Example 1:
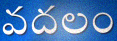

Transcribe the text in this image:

వదలం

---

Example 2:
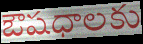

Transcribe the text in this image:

ఔషధాలకు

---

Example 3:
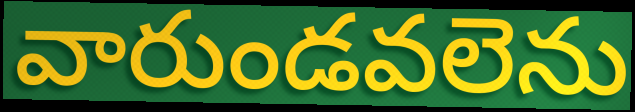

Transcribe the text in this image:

వారుండవలెను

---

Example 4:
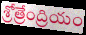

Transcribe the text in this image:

శ్రోత్రేంద్రియం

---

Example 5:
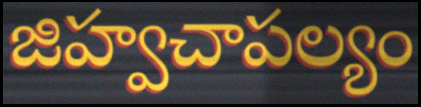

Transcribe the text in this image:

జిహ్వచాపల్యం